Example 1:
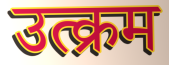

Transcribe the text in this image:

उत्क्रम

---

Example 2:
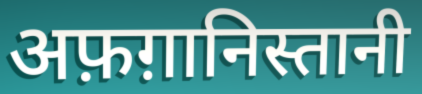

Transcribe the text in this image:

अफ़ग़ानिस्तानी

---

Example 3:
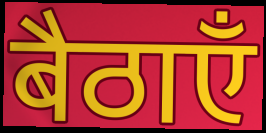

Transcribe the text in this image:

बैठाएँ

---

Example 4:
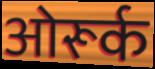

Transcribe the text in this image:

ओरूर्क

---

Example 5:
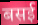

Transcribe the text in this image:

बसई